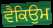
ਵੈਕਿਉਮ